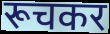
रूचकर